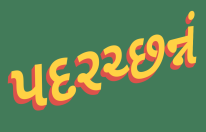
પદરચ્છન્નં